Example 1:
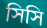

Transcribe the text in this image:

সিসি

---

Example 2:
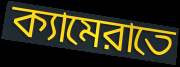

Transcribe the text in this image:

ক্যামেরাতে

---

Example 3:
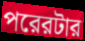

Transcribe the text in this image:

পরেরটার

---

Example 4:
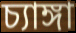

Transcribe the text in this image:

চ্যাঙ্গা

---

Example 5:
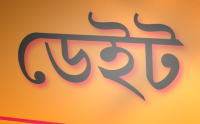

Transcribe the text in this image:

ডেইট